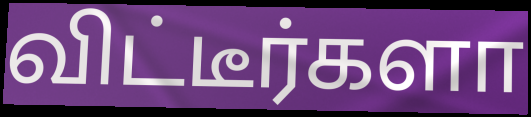
விட்டீர்களா